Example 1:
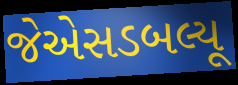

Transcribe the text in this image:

જેએસડબલ્યૂ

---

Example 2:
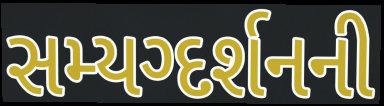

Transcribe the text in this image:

સમ્યગ્દર્શનની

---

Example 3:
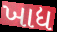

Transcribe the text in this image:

ખાદ્ય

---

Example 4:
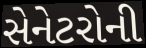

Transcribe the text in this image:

સેનેટરોની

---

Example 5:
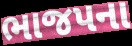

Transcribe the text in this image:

ભાજપના